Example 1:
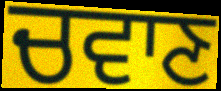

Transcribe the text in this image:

ਚਵਾਣ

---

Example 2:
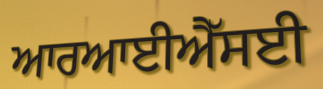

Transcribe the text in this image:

ਆਰਆਈਐੱਸਈ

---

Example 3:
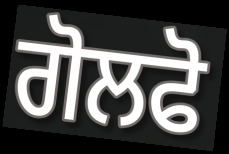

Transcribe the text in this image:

ਗੋਲਫੋ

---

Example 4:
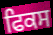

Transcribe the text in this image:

ਫਿਕਸ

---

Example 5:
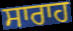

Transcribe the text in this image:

ਸਾਰਾਹ